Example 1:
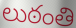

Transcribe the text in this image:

లుఠంతి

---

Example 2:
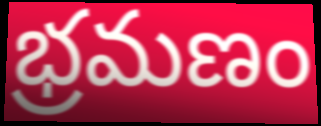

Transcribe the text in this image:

భ్రమణం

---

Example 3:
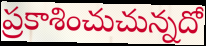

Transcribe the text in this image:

ప్రకాశించుచున్నదో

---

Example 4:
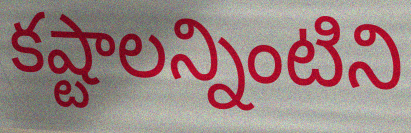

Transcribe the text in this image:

కష్టాలన్నింటిని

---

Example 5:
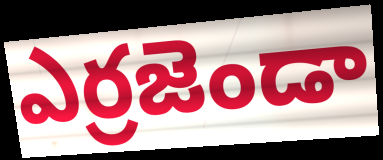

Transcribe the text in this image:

ఎర్రజెండా